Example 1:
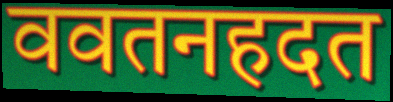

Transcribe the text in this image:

ववतनहदत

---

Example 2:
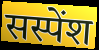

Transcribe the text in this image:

सस्पेंश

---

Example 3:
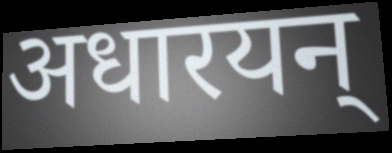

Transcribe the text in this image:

अधारयन्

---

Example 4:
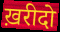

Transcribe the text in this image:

ख़रीदो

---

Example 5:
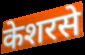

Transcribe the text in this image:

केशरसे